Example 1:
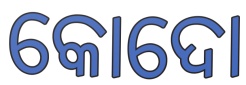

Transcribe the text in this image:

କୋଦୋ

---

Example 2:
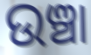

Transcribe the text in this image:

ଉଞ୍ଚା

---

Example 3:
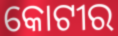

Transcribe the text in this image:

କୋଟୀର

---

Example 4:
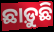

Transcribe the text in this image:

ଛାଡ଼ୁଛି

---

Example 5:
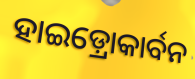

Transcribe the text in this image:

ହାଇଡ଼୍ରୋକାର୍ବନ